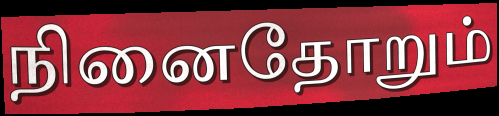
நினைதோறும்